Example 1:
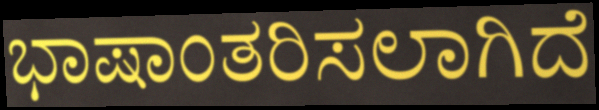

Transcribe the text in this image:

ಭಾಷಾಂತರಿಸಲಾಗಿದೆ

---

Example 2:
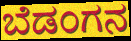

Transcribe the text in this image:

ಬೆಡಂಗನ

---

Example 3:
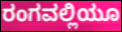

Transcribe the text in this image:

ರಂಗವಲ್ಲಿಯೂ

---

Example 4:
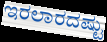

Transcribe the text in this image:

ಇರಲಾರದಷ್ಟು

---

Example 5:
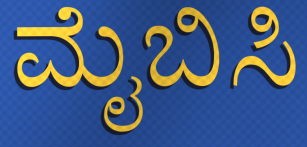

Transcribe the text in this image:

ಮೈಬಿಸಿ